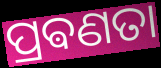
ପ୍ରଵଣତା